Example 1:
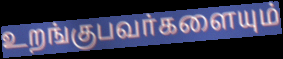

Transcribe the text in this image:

உறங்குபவர்களையும்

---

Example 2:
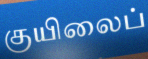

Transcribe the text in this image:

குயிலைப்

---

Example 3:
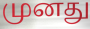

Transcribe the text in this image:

முனது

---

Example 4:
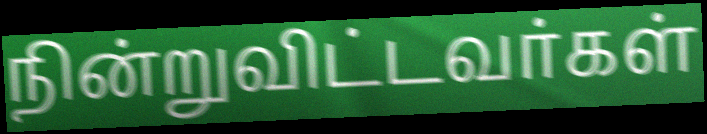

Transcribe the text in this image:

நின்றுவிட்டவர்கள்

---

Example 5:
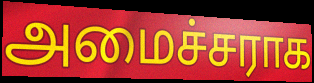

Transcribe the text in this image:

அமைச்சராக